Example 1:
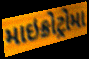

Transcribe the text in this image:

માઇક્રોટ્રોમા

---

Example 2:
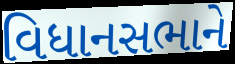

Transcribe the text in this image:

વિધાનસભાને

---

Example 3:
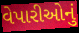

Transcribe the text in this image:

વેપારીઓનું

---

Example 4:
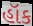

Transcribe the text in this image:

હૉક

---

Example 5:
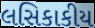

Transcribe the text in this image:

લસિકાકીય